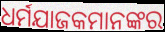
ଧର୍ମଯାଜକମାନଙ୍କର